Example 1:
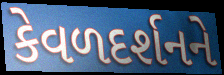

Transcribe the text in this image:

કેવળદર્શનને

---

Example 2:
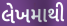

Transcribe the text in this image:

લેખમાથી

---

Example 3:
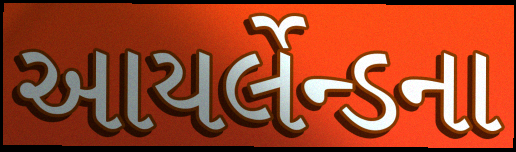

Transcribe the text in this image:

આયર્લેન્ડના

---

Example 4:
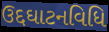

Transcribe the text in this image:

ઉદ્દઘાટનવિધિ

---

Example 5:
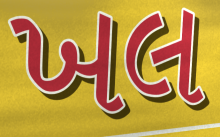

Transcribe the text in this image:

ખલ